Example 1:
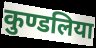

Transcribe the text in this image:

कुण्डलिया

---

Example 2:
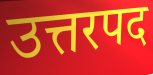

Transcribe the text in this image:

उत्तरपद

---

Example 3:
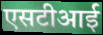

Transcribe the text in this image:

एसटीआई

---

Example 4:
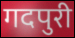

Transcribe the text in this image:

गदपुरी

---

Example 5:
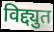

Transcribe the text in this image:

विद्द्युत